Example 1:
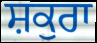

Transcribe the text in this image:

ਸ਼ਕੁਰਾ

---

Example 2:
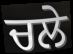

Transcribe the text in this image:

ਚਲੇ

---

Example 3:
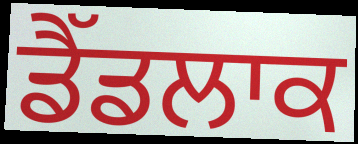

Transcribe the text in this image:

ਡੈੱਡਲਾਕ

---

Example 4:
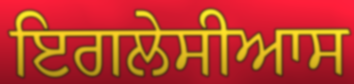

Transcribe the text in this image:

ਇਗਲੇਸੀਆਸ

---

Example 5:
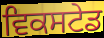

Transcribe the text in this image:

ਵਿਕਸਟੇਡ